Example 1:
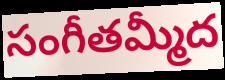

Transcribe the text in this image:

సంగీతమ్మీద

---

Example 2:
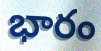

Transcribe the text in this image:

భారం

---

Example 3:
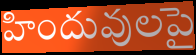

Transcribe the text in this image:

హిందువులపై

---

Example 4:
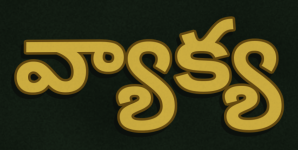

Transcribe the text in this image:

వ్యాక్య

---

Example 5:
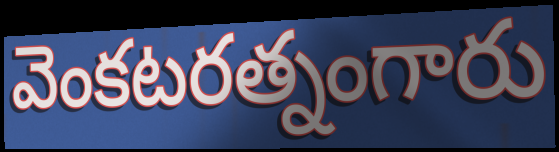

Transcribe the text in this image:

వెంకటరత్నంగారు